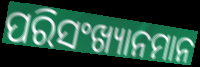
ପରିସଂଖ୍ୟାନମାନ